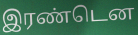
இரண்டென